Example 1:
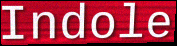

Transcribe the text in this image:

Indole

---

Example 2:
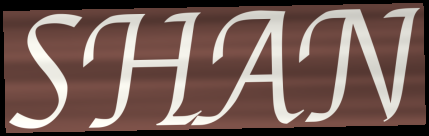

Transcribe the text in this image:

SHAN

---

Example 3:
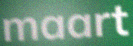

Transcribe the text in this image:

maart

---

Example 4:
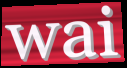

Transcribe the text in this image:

wai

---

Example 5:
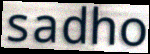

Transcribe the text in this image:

sadho